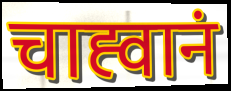
चाह्वानं